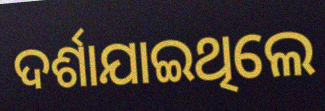
ଦର୍ଶାଯାଇଥିଲେ